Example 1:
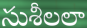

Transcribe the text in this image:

సుశీలలా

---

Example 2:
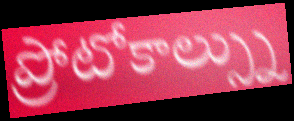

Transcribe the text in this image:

ప్రోటోకాల్స్ను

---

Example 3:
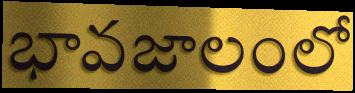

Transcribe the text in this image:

భావజాలంలో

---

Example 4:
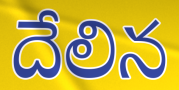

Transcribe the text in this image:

దేలిన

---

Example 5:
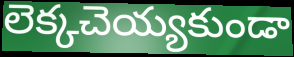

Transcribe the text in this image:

లెక్కచెయ్యకుండా